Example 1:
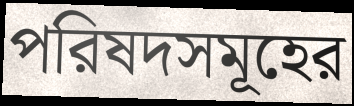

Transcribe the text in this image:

পরিষদসমূহের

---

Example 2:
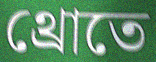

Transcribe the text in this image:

থ্রোতে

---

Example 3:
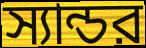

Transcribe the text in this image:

স্যান্ডর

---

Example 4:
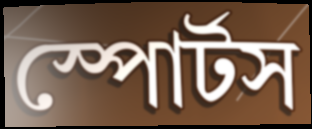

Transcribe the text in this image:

স্পোর্টস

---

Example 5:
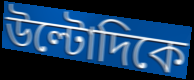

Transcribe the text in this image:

উল্টোদিকে